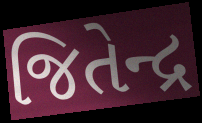
જિતેન્દ્ર